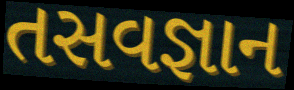
તસવજ્ઞાન